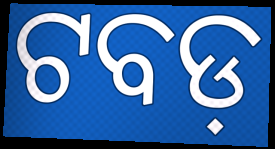
ଟବଡ଼